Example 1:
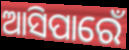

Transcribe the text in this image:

ଆସିପାରେଁ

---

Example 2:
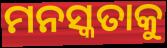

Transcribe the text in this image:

ମନସ୍କତାକୁ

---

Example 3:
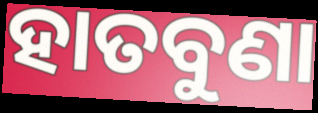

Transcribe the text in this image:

ହାତବୁଣା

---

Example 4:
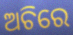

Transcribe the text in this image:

ଅଚିରେ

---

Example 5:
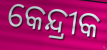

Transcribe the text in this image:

କେନ୍ଦ୍ରୀକ